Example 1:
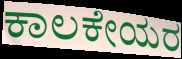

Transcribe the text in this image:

ಕಾಲಕೇಯರ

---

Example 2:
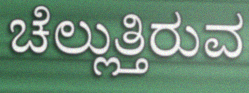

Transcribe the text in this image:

ಚೆಲ್ಲುತ್ತಿರುವ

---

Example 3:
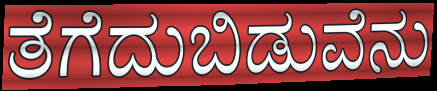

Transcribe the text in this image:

ತೆಗೆದುಬಿಡುವೆನು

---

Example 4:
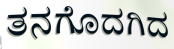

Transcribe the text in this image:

ತನಗೊದಗಿದ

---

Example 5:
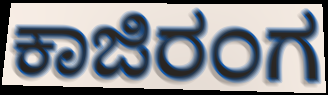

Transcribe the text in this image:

ಕಾಜಿರಂಗ